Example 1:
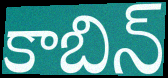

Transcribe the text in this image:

కాబిన్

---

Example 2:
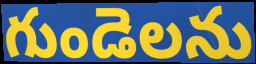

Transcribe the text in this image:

గుండెలను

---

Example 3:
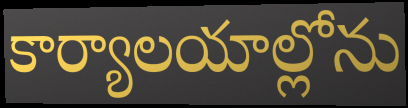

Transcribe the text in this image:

కార్యాలయాల్లోను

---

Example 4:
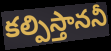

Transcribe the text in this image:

కల్పిస్తాననీ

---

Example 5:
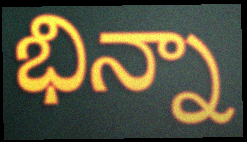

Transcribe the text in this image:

భిన్నా